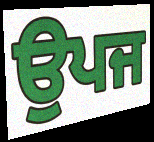
ਉਪਜ